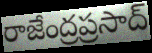
రాజేంద్రప్రసాద్